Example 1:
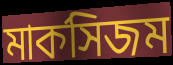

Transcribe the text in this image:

মার্কসিজম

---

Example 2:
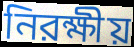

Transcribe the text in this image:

নিরক্ষীয়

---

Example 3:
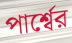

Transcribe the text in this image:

পার্শ্বের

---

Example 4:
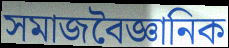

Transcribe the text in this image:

সমাজবৈজ্ঞানিক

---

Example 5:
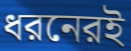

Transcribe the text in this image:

ধরনেরই